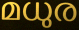
മധുര